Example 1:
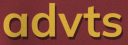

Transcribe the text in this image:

advts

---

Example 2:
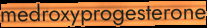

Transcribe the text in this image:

medroxyprogesterone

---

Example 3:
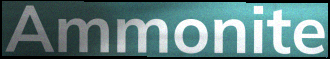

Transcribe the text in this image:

Ammonite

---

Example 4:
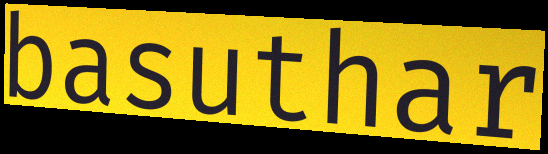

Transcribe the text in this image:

basuthar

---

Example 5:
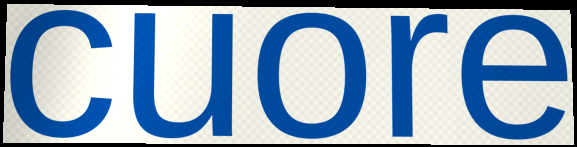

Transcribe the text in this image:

cuore